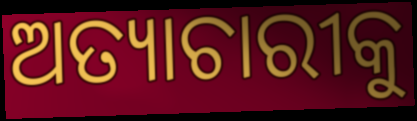
ଅତ୍ୟାଚାରୀକୁ